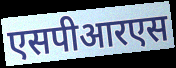
एसपीआरएस